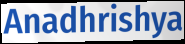
Anadhrishya